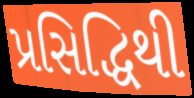
પ્રસિદ્ધિથી